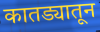
कातड्यातून